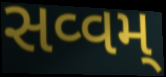
સવ્વમ્